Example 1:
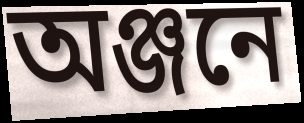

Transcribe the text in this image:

অঞ্জনে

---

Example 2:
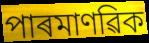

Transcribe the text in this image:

পাৰমাণৱিক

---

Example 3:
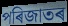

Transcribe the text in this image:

পৰিজাতৰ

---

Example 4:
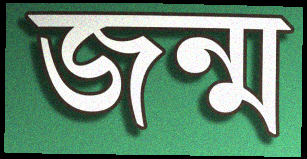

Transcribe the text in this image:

জন্ম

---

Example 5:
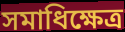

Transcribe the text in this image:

সমাধিক্ষেত্ৰ